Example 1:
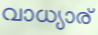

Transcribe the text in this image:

വാധ്യാര്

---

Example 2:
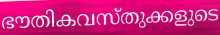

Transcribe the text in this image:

ഭൗതികവസ്തുക്കളുടെ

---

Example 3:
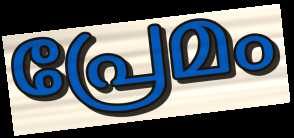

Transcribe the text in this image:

പ്രേമം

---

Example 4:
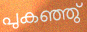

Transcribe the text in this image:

പുകഞ്ഞു്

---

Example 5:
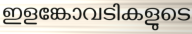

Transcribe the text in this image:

ഇളങ്കോവടികളുടെ